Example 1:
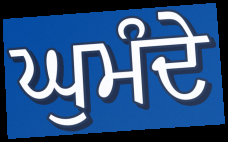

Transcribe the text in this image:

ਘੁਮੰਦੇ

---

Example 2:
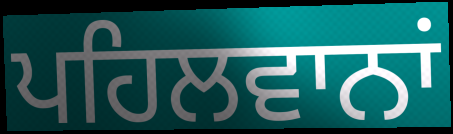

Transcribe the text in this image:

ਪਹਿਲਵਾਨਾਂ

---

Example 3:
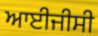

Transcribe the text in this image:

ਆਈਜੀਸੀ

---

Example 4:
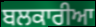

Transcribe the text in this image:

ਬਲਕਾਰੀਆ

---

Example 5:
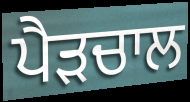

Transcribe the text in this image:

ਪੈੜਚਾਲ